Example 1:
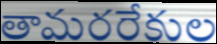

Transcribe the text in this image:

తామరరేకుల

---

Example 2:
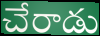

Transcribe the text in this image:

చేరాడు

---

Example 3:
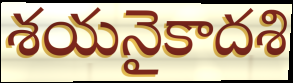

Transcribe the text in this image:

శయనైకాదశి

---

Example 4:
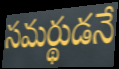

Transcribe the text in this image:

సమర్థుడనే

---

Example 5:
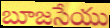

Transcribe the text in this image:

బూజసేయు